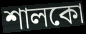
শালকো